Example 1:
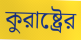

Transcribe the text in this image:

কুরাষ্ট্রের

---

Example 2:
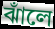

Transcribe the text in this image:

ঝাঁলে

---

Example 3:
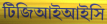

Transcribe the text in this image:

টিজিআইআইসি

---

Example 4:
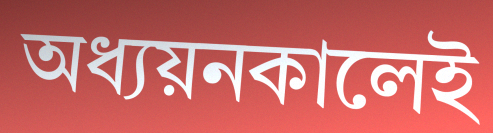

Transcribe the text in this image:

অধ্যয়নকালেই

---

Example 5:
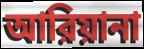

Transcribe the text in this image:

আরিয়ানা